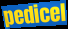
pedicel